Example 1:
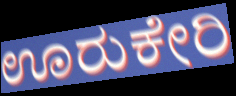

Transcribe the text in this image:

ಊರುಕೇರಿ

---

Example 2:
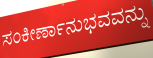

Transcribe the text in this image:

ಸಂಕೀರ್ಣಾನುಭವವನ್ನು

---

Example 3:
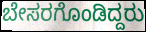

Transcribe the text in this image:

ಬೇಸರಗೊಂಡಿದ್ದರು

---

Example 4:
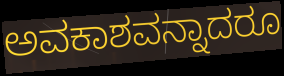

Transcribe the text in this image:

ಅವಕಾಶವನ್ನಾದರೂ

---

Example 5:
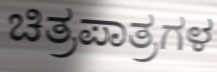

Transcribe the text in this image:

ಚಿತ್ರಪಾತ್ರಗಳ